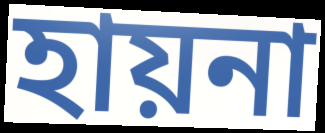
হায়না